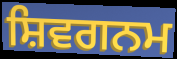
ਸ਼ਿਵਗਨਮ